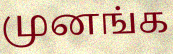
முனங்க